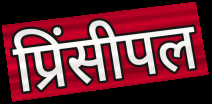
प्रिंसीपल